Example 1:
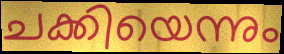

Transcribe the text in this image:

ചക്കിയെന്നും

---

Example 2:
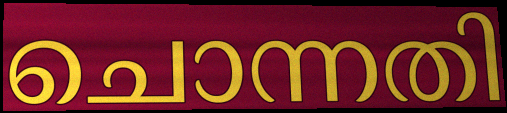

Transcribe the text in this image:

ചൊന്നതി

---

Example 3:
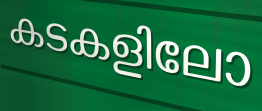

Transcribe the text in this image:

കടകളിലോ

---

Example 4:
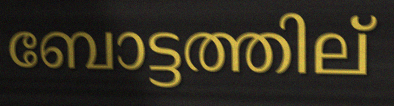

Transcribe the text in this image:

ബോട്ടത്തില്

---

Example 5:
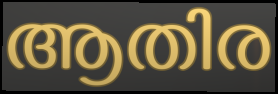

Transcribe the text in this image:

ആതിര